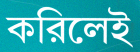
করিলেই